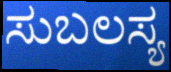
ಸುಬಲಸ್ಯ